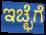
ಇಚ್ಛೆಗೆ